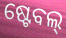
ଷ୍ଟେବଲ୍